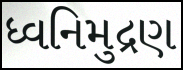
ધ્વનિમુદ્રણ